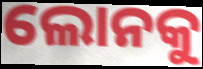
ଲୋନକୁ